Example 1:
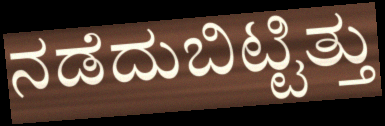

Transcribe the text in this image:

ನಡೆದುಬಿಟ್ಟಿತ್ತು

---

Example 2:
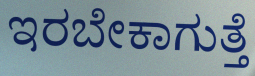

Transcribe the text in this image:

ಇರಬೇಕಾಗುತ್ತೆ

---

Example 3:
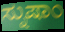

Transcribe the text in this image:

ಸ್ನುಷಾಂ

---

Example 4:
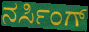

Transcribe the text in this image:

ನರ್ಸಿಂಗ್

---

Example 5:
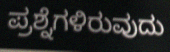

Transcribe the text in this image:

ಪ್ರಶ್ನೆಗಳಿರುವುದು